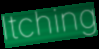
Itching